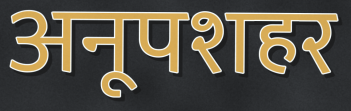
अनूपशहर